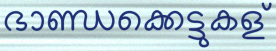
ഭാണ്ഡക്കെട്ടുകള്